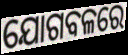
ଯୋଗବଳରେ